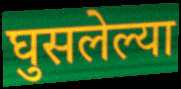
घुसलेल्या